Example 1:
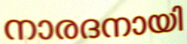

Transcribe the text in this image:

നാരദനായി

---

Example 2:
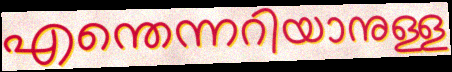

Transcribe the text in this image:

എന്തെന്നറിയാനുള്ള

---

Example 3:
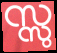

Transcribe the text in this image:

സ്സു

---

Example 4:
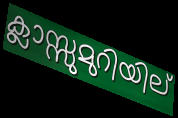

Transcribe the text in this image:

ക്ലാസ്സുമുറിയില്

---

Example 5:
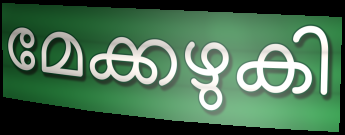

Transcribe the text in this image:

മേക്കഴുകി